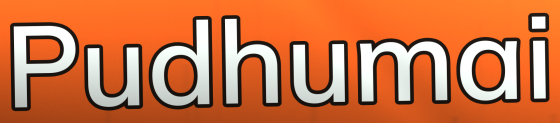
Pudhumai